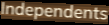
Independents